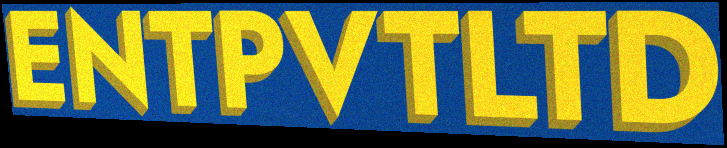
ENTPVTLTD